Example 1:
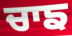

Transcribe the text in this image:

ਚਾਙ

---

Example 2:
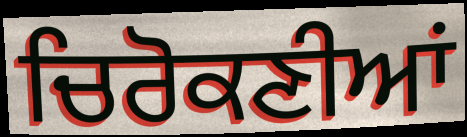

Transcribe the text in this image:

ਚਿਰੋਕਣੀਆਂ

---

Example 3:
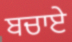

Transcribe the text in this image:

ਬਚਾਏ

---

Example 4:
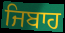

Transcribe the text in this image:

ਜਿਬਾਹ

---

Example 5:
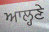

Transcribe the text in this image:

ਆਲ੍ਹਣੇ